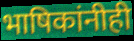
भाषिकांनीही